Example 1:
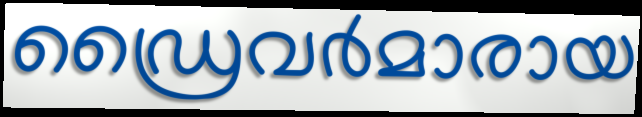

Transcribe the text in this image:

ഡ്രൈവർമാരായ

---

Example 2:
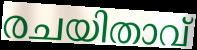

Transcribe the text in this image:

രചയിതാവ്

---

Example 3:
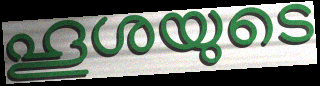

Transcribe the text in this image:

ഹൂശയുടെ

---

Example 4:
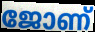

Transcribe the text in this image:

ജോണ്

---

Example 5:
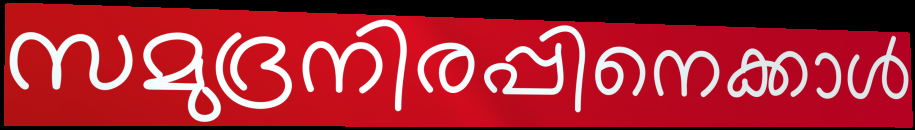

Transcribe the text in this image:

സമുദ്രനിരപ്പിനെക്കാൾ